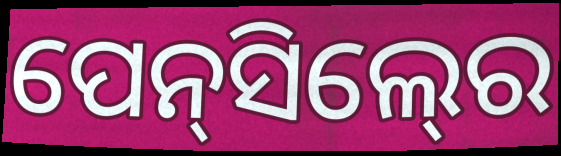
ପେନ୍‍ସିଲ୍‍ରେ